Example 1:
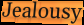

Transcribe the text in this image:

Jealousy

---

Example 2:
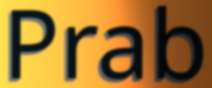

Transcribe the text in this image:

Prab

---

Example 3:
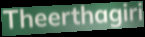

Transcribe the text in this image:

Theerthagiri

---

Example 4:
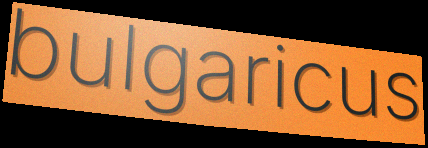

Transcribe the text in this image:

bulgaricus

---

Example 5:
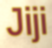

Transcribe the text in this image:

Jiji